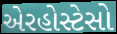
એરહોસ્ટેસો